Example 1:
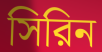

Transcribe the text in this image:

সিরিন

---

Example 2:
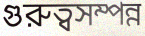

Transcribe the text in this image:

গুরুত্বসম্পন্ন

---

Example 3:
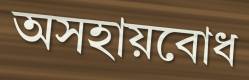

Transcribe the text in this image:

অসহায়বোধ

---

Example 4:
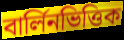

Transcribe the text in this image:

বার্লিনভিত্তিক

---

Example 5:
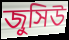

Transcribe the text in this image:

জুসিউ